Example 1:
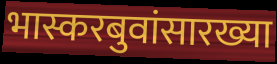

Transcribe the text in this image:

भास्करबुवांसारख्या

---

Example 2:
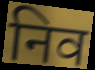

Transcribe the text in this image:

निव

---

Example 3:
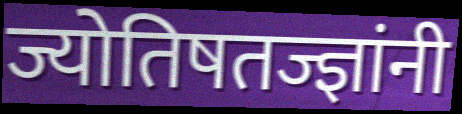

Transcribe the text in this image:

ज्योतिषतज्ज्ञांनी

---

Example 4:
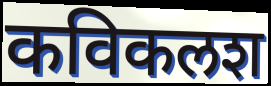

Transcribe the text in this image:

कविकलश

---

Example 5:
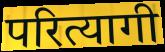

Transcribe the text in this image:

परित्यागी